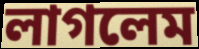
লাগলেম